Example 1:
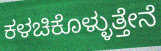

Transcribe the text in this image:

ಕಳಚಿಕೊಳ್ಳುತ್ತೇನೆ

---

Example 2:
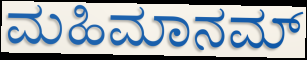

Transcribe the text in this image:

ಮಹಿಮಾನಮ್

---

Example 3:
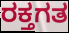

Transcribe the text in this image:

ರಕ್ತಗತ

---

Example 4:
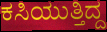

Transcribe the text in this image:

ಕಸಿಯುತ್ತಿದ್ದ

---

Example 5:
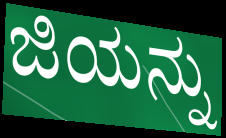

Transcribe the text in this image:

ಜಿಯನ್ನು